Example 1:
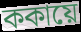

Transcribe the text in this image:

ককায়ে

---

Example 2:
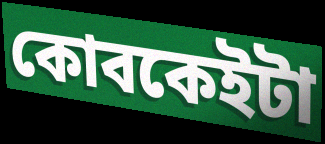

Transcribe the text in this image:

কোবকেইটা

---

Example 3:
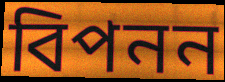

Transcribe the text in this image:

বিপনন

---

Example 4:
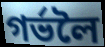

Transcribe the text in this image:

গৰ্ভলৈ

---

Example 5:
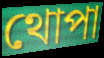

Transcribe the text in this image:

থোপা